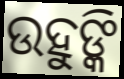
ଉହୁଙ୍କି